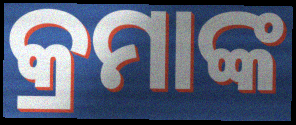
କ୍ରମାଙ୍କ